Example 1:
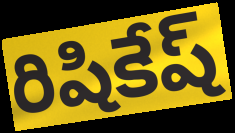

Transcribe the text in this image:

రిషికేష్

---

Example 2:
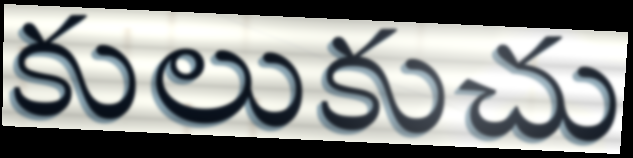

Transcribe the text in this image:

కులుకుచు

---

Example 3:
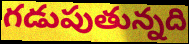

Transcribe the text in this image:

గడుపుతున్నది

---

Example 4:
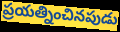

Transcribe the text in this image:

ప్రయత్నించినపుడు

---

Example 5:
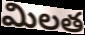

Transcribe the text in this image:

మిలత